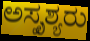
ಅಸ್ಪೃಶ್ಯರು